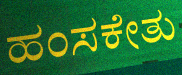
ಹಂಸಕೇತು